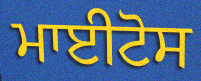
ਮਾਈਟੋਸ